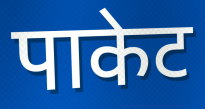
पाकेट